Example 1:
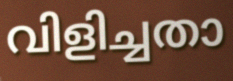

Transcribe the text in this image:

വിളിച്ചതാ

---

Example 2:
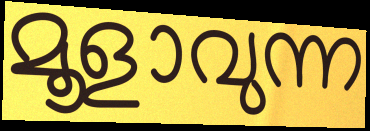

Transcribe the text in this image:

മൂളാവുന്ന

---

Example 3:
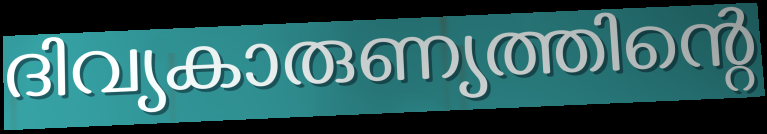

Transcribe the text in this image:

ദിവ്യകാരുണ്യത്തിന്റെ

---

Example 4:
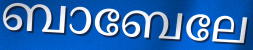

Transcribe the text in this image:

ബാബേലേ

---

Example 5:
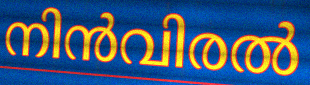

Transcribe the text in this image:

നിൻവിരൽ